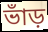
ভাঁড়